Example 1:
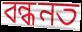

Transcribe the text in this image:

বন্ধনত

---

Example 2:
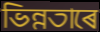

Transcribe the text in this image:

ভিন্নতাৰে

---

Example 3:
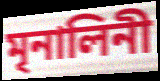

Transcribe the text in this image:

মৃনালিনী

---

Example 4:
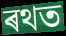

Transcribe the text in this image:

ৰথত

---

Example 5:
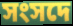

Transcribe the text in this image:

সংসদে